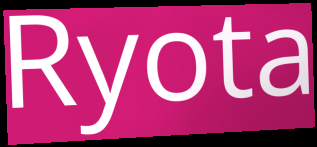
Ryota